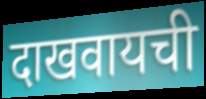
दाखवायची